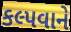
કલ્પવાને